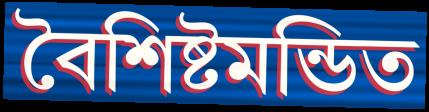
বৈশিষ্টমন্ডিত